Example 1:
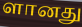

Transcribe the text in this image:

ளானது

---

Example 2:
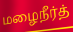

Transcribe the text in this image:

மழைநீர்த்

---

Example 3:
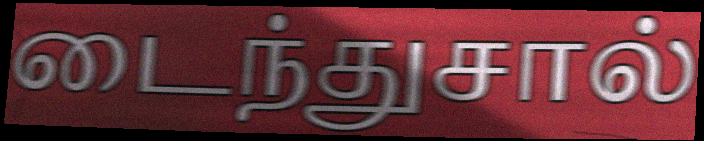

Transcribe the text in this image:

டைந்துசால்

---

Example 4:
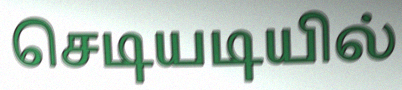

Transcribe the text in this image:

செடியடியில்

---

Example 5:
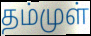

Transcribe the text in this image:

தம்முள்